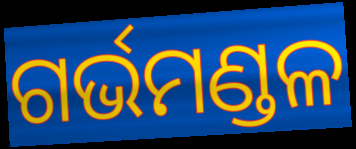
ଗର୍ଭମଣ୍ଡଳ